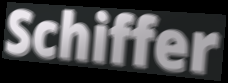
Schiffer